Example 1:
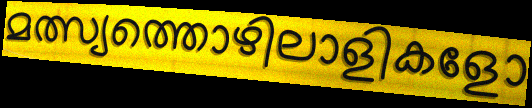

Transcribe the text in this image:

മത്സ്യത്തൊഴിലാളികളോ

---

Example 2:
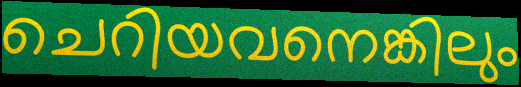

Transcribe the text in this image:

ചെറിയവനെങ്കിലും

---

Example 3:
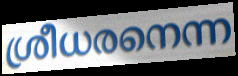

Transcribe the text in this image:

ശ്രീധരനെന്ന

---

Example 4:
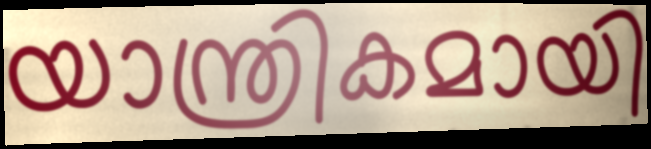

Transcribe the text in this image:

യാന്ത്രികമായി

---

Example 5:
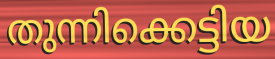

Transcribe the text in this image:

തുന്നിക്കെട്ടിയ